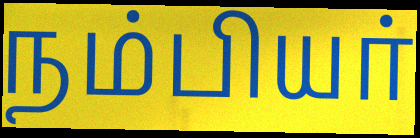
நம்பியர்